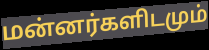
மன்னர்களிடமும்